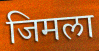
जिमला